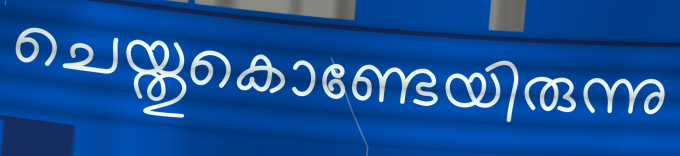
ചെയ്തുകൊണ്ടേയിരുന്നു